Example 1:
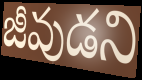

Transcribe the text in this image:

జీవుడని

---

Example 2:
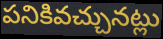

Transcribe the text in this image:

పనికివచ్చునట్లు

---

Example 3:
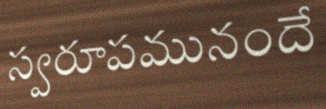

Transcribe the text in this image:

స్వరూపమునందే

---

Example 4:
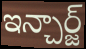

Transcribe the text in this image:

ఇన్చార్జ్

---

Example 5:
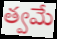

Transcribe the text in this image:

త్వమే